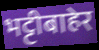
भट्टीबाहेर